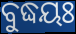
ବୁଦ୍ଧୟଃ